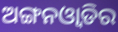
ଅଙ୍ଗନଓ୍ବାଡିର